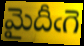
మైదీఁగె